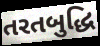
તરતબુદ્ધિ